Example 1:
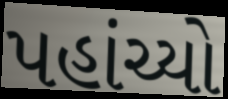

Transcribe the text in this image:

પહાંચ્યો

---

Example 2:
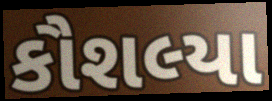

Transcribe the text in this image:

કૌશલ્યા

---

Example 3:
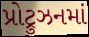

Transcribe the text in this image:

પ્રોટ્રુઝનમાં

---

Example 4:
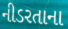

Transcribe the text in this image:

નીડરતાના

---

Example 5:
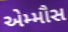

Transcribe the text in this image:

એમ્મૌસ